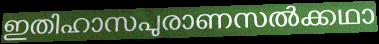
ഇതിഹാസപുരാണസൽക്കഥാ